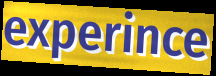
experince